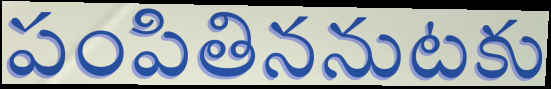
పంపితిననుటకు